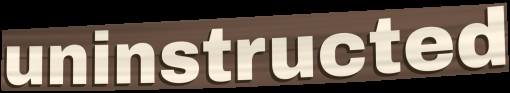
uninstructed